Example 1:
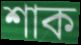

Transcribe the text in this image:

শাক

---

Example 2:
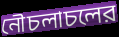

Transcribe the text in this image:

নৌচলাচলের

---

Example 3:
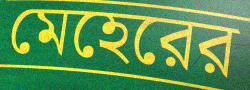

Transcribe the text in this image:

মেহেরের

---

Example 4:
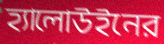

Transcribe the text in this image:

হ্যালোউইনের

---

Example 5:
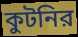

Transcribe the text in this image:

কুটনির